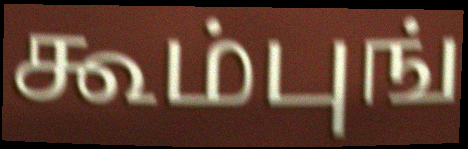
கூம்புங்